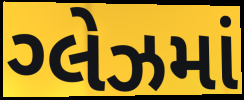
ગ્લેઝમાં